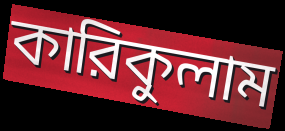
কারিকুলাম